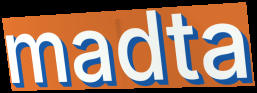
madta